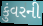
કુંવરની